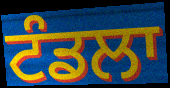
ਟੰਡਲਾ